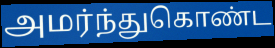
அமர்ந்துகொண்ட